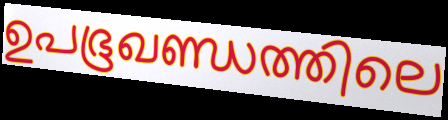
ഉപഭൂഖണ്ഡത്തിലെ